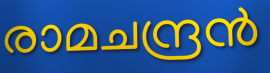
രാമചന്ദ്രൻ